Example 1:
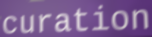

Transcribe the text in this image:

curation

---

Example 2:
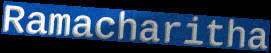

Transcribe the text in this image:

Ramacharitha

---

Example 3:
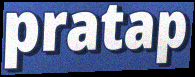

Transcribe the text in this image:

pratap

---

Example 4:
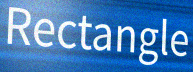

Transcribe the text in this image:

Rectangle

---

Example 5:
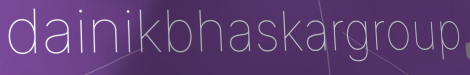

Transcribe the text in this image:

dainikbhaskargroup